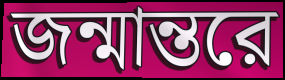
জন্মান্তরে